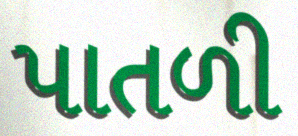
પાતળી